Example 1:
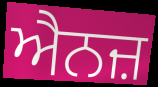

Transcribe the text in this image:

ਐਨਜ਼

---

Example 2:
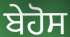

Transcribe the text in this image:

ਬੇਹੋਸ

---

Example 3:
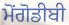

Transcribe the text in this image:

ਮੋਂਗੋਡੀਬੀ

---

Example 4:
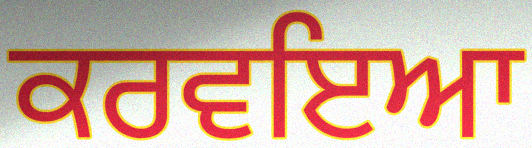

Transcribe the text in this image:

ਕਰਵਇਆ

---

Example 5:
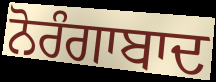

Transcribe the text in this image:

ਨੋਰੰਗਾਬਾਦ